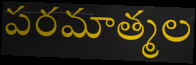
పరమాత్మల